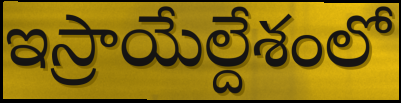
ఇస్రాయేల్దేశంలో